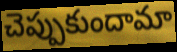
చెప్పుకుందామా